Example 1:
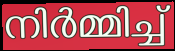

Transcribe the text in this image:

നിർമ്മിച്ച്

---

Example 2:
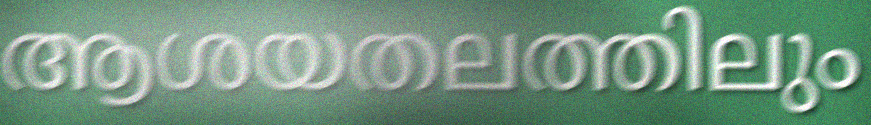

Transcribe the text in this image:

ആശയതലത്തിലും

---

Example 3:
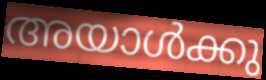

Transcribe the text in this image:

അയാൾക്കു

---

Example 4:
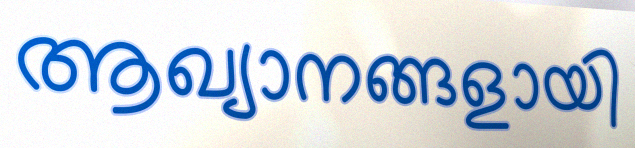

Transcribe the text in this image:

ആഖ്യാനങ്ങളായി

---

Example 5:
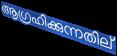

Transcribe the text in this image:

ആഗ്രഹിക്കുന്നതില്